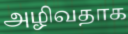
அழிவதாக